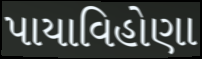
પાયાવિહોણા